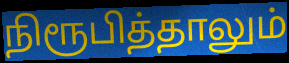
நிரூபித்தாலும்